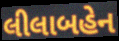
લીલાબહેન